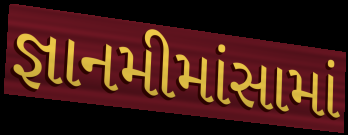
જ્ઞાનમીમાંસામાં